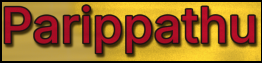
Parippathu